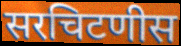
सरचिटणीस